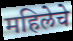
महिलेचे